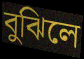
বুঝিলে